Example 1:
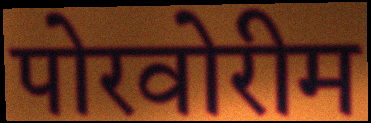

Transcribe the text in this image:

पोरवोरीम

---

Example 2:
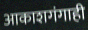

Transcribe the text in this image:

आकाशगंगाही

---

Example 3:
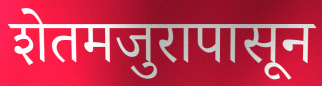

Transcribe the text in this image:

शेतमजुरापासून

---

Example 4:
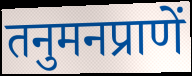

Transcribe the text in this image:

तनुमनप्राणें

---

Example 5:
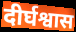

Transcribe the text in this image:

दीर्घश्वास